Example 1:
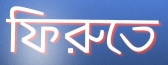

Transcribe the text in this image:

ফিরুতে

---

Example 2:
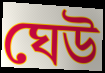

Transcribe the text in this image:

ঘেউ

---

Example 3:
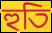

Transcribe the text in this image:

হুতি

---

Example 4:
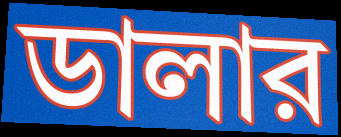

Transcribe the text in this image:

ডালার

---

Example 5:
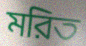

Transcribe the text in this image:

মরিত